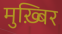
मुख़्बिर